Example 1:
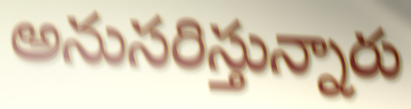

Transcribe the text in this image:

అనుసరిస్తున్నారు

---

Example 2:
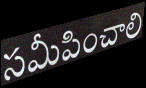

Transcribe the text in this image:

సమీపించాలి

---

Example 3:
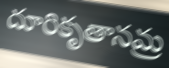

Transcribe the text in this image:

దూరికృతానమ్ర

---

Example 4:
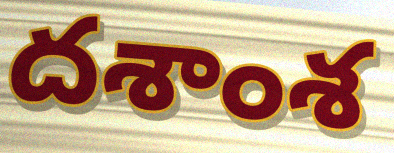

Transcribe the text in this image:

దశాంశ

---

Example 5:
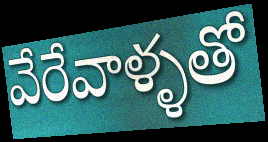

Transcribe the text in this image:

వేరేవాళ్ళతో